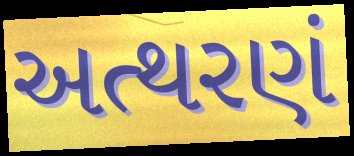
અત્થરણં